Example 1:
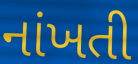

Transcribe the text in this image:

નાંખતી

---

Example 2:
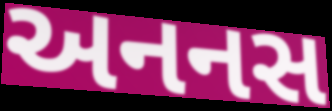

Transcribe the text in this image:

અનનસ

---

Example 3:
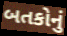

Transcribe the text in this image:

બતકોનું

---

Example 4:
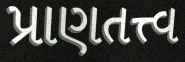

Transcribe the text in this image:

પ્રાણતત્ત્વ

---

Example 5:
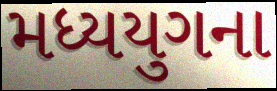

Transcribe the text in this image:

મધ્યયુગના